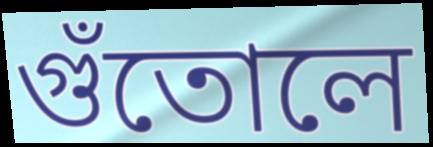
গুঁতোলে